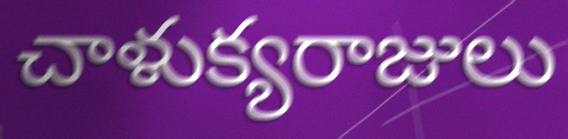
చాళుక్యరాజులు